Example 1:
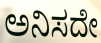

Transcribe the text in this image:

ಅನಿಸದೇ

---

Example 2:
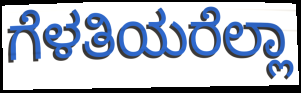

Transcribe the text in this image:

ಗೆಳತಿಯರೆಲ್ಲಾ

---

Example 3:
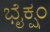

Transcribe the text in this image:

ಭೈಕ್ಷಂ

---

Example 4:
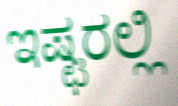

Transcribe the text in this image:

ಇಷ್ಟರಲ್ಲಿ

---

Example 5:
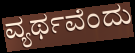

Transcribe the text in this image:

ವ್ಯರ್ಥವೆಂದು